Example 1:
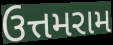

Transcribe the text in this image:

ઉત્તમરામ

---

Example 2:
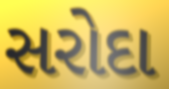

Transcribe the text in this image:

સરોદા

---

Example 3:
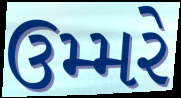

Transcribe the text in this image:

ઉમ્મરે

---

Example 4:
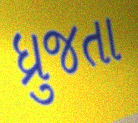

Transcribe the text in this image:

ધ્રુજતા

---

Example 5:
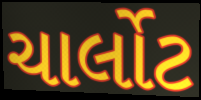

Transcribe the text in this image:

ચાર્લોટ